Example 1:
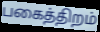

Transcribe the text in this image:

பகைத்திறம்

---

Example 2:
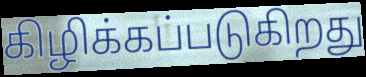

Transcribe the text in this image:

கிழிக்கப்படுகிறது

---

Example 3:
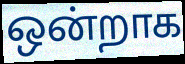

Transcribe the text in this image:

ஒன்றாக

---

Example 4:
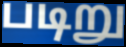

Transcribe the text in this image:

படிறு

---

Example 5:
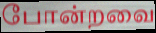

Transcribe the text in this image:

போன்றவை